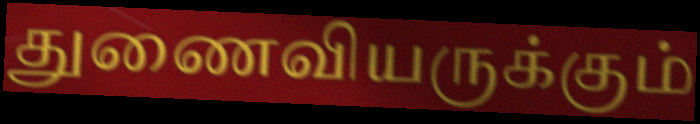
துணைவியருக்கும்